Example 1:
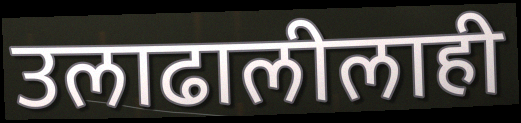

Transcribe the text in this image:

उलाढालीलाही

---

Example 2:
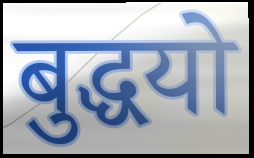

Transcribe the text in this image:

बुद्धयो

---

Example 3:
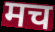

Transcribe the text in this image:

मच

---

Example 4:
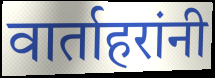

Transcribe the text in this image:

वार्ताहरांनी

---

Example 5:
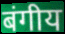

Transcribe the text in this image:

बंगीय